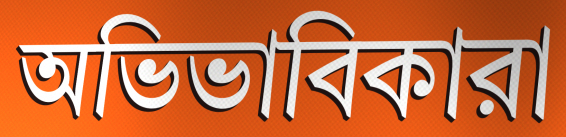
অভিভাবিকারা